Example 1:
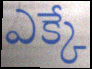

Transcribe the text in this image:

ఎక్కే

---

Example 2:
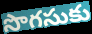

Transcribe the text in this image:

సొగసుకు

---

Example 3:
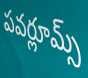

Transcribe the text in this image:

పవర్లూమ్స్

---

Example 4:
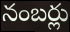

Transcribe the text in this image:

నంబర్లు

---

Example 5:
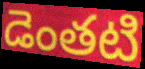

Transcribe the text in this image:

డెంతటి